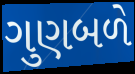
ગુણબળે